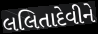
લલિતાદેવીને